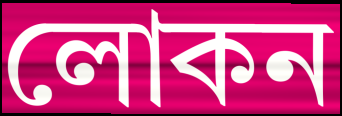
লোকন